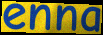
enna